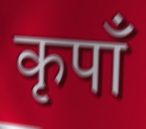
कृपाँ